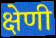
क्षेणी